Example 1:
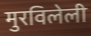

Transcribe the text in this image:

मुरविलेली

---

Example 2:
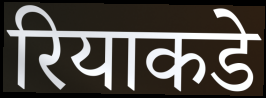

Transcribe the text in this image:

रियाकडे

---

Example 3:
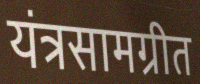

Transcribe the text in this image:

यंत्रसामग्रीत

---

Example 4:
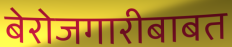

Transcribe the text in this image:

बेरोजगारीबाबत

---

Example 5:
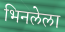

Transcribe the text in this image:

भिनलेला